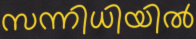
സന്നിധിയിൽ